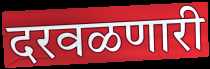
दरवळणारी